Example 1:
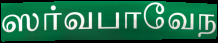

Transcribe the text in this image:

ஸர்வபாவேந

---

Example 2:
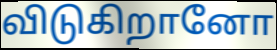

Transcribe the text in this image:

விடுகிறானோ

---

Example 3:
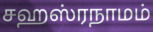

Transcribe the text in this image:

சஹஸ்ரநாமம்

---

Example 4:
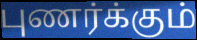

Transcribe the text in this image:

புணர்க்கும்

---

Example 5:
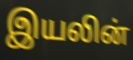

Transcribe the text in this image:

இயலின்